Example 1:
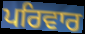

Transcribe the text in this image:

ਪਰਿਵਾਰ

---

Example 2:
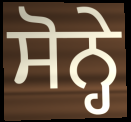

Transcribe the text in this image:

ਸੋਨ੍ਹੇ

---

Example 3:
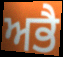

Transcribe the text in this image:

ਅਭੈ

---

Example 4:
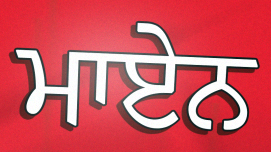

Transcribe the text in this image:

ਮਾਏਨ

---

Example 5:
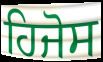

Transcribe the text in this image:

ਹਿਜੋਸ